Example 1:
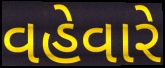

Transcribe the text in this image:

વહેવારે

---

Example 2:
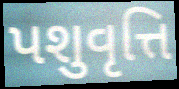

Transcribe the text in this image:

પશુવૃત્તિ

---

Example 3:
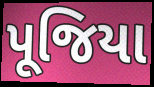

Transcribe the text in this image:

પૂજિયા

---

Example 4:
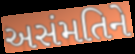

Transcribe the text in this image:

અસંમતિને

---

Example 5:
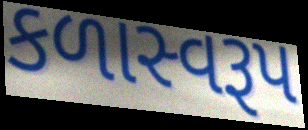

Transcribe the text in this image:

કળાસ્વરૂપ